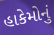
હાકેમોનું